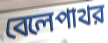
বেলেপাথর